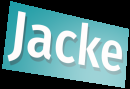
Jacke